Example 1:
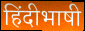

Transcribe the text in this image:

हिंदीभाषी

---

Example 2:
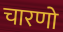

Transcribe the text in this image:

चारणो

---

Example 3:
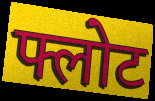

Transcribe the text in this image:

फ्लोट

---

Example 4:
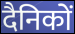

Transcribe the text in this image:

दैनिकों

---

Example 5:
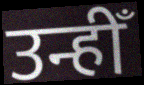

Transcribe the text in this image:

उन्हीँ